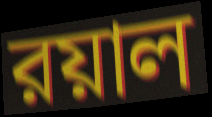
রয়াল